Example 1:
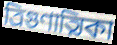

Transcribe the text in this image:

ত্রিগুণাত্মিকা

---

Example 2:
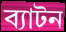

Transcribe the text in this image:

ব্যাটন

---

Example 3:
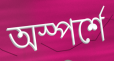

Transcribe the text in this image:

অস্পর্শে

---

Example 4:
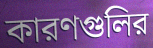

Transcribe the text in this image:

কারণগুলির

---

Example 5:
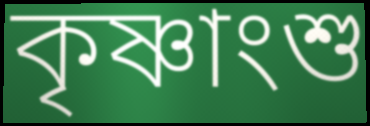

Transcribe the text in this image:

কৃষ্ণাংশু